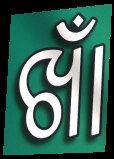
ଖାଁ